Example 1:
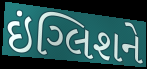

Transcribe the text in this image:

ઇંગ્લિશને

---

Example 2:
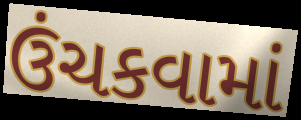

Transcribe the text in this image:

ઉંચકવામાં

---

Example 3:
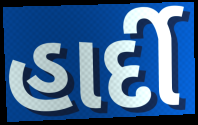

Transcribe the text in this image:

હાર્દી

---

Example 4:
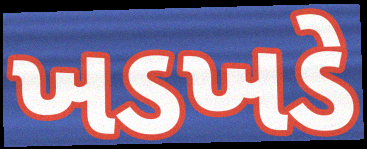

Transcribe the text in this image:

ખડખડે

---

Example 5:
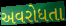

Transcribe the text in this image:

અવરોધતા